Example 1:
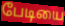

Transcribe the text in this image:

பேடியை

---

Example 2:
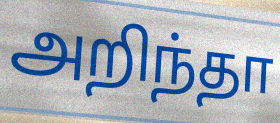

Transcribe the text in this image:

அறிந்தா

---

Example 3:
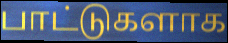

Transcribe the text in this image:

பாட்டுகளாக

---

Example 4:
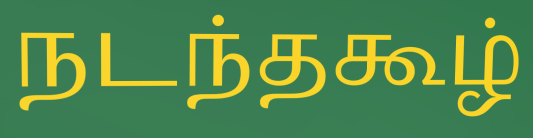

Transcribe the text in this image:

நடந்தகூழ்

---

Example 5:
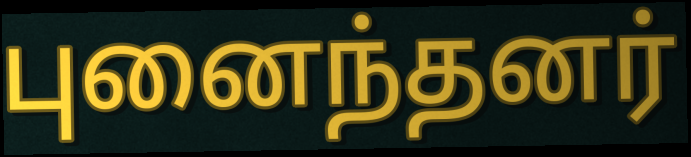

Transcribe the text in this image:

புனைந்தனர்